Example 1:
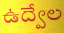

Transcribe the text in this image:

ఉద్వేల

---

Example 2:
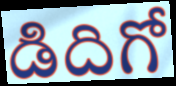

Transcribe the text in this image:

డిదిగో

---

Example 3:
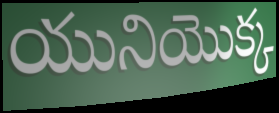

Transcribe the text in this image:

యునియొక్క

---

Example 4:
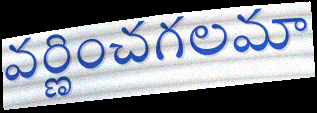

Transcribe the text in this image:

వర్ణించగలమా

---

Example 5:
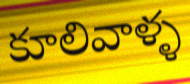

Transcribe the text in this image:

కూలివాళ్ళ